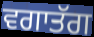
ਵਗਾਤੱਗ